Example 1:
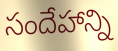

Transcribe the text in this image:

సందేహాన్ని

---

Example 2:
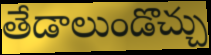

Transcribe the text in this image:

తేడాలుండొచ్చు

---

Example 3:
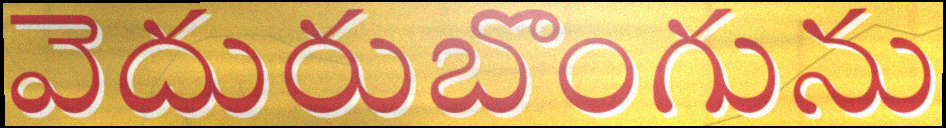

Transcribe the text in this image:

వెదురుబొంగును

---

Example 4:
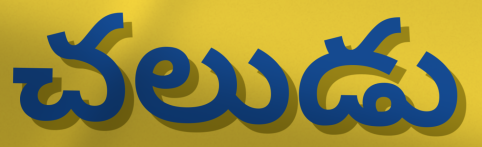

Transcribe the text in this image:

చలుడు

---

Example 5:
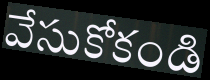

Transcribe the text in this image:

వేసుకోకండి